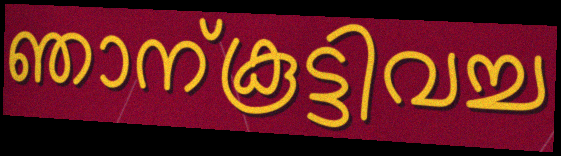
ഞാന്കൂട്ടിവച്ച